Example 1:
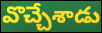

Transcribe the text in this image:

వొచ్చేశాడు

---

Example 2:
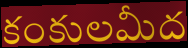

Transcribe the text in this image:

కంకులమీద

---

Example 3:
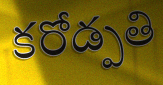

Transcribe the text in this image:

కరోడ్పతి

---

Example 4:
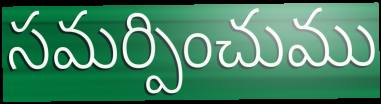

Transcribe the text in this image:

సమర్పించుము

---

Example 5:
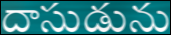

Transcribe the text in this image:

దాసుడును